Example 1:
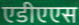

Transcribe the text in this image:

एडीएएस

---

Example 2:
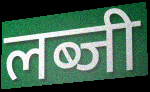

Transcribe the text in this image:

लब्जी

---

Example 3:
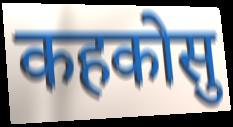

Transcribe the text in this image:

कहकोसु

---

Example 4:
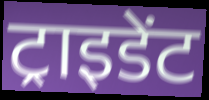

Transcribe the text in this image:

ट्राइडेंट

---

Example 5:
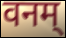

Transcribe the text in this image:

वनम्